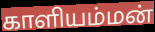
காளியம்மன்